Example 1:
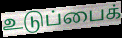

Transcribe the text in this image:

உடுப்பைக்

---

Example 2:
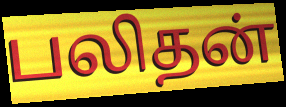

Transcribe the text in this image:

பலிதன்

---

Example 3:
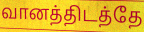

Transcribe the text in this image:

வானத்திடத்தே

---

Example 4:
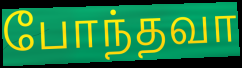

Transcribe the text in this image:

போந்தவா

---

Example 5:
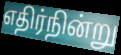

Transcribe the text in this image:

எதிர்நின்று